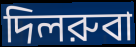
দিলরুবা